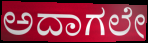
ಅದಾಗಲೇ